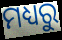
ମଧ୍ୟରୁ